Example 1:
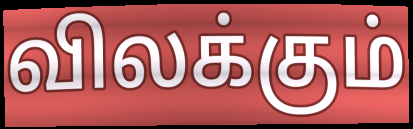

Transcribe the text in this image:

விலக்கும்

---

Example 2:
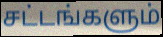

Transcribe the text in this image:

சட்டங்களும்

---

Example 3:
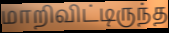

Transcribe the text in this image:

மாறிவிட்டிருந்த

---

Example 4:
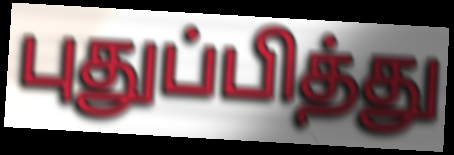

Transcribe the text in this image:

புதுப்பித்து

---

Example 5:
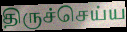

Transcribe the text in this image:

திருச்செய்ய